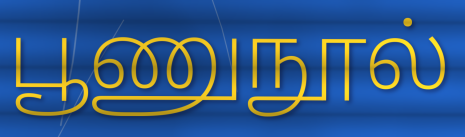
பூணுநூல்